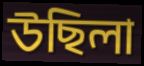
উছিলা